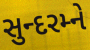
સુન્દરમ્ને